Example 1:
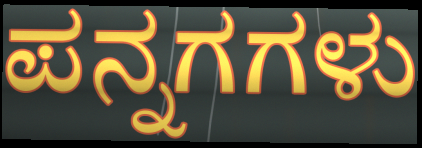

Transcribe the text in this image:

ಪನ್ನಗಗಳು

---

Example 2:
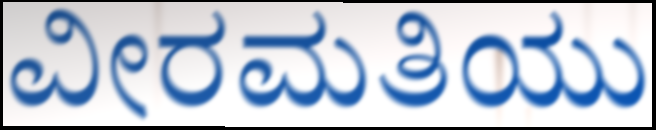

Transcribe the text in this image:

ವೀರಮತಿಯು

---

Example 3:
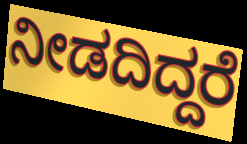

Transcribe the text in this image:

ನೀಡದಿದ್ದರೆ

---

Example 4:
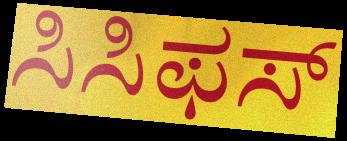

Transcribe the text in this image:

ಸಿಸಿಫಸ್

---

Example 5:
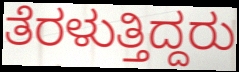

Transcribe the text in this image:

ತೆರಳುತ್ತಿದ್ದರು